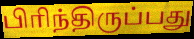
பிரிந்திருப்பது